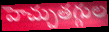
హెచ్చుతగ్గుల